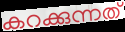
കറക്കുന്നത്